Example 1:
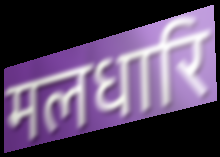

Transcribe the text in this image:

मलधारि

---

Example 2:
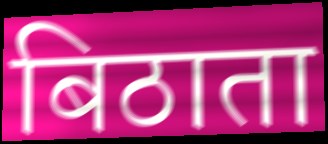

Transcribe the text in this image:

बिठाता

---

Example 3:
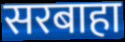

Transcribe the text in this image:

सरबाहा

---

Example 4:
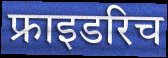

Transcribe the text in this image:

फ्राइडरिच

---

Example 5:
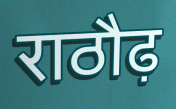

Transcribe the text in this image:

राठौढ़